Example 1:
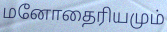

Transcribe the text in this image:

மனோதைரியமும்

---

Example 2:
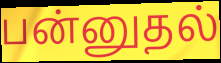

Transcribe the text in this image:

பன்னுதல்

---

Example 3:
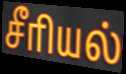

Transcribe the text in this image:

சீரியல்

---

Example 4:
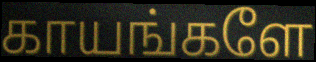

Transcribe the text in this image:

காயங்களே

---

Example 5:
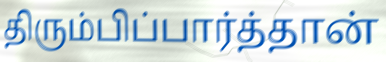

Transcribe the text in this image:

திரும்பிப்பார்த்தான்